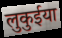
लुकुईया